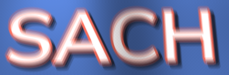
SACH